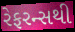
રેફરન્સથી